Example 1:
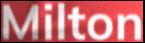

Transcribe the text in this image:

Milton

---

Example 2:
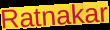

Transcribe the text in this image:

Ratnakar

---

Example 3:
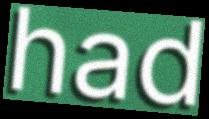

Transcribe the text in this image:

had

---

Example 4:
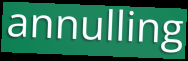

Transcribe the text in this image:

annulling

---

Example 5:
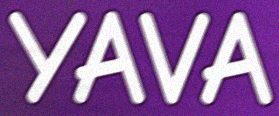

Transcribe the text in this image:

YAVA